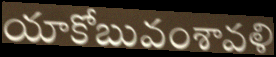
యాకోబువంశావళి